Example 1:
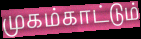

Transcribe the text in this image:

முகம்காட்டும்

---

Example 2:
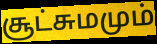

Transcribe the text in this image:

சூட்சுமமும்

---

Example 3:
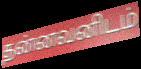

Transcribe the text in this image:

தன்னவனிடம்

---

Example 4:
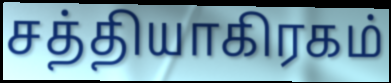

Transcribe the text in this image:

சத்தியாகிரகம்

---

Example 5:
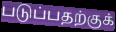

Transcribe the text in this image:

படுப்பதற்குக்